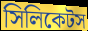
সিলিকেটস